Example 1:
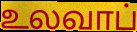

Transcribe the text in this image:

உலவாப்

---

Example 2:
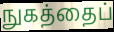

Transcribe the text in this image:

நுகத்தைப்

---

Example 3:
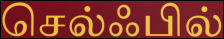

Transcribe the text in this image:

செல்ஃபில்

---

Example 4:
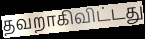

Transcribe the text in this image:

தவறாகிவிட்டது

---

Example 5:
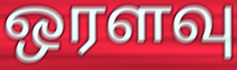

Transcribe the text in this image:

ஒரளவு